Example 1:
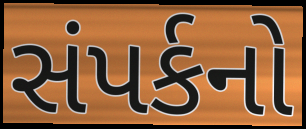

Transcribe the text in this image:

સંપર્કનો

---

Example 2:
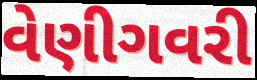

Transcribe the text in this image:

વેણીગવરી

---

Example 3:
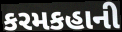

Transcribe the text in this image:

કરમકહાની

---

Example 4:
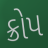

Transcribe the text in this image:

ક્રોપ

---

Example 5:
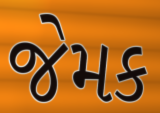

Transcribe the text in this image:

જેમક